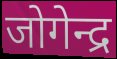
जोगेन्द्र